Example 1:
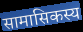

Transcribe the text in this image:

सामासिकस्य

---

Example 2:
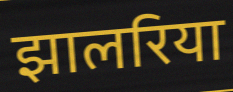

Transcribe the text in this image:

झालरिया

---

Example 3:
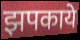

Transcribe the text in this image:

झपकाये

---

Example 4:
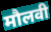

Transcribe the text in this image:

मौलवी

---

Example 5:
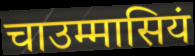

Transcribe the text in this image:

चाउम्मासियं